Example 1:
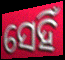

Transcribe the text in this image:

ସେହିଁ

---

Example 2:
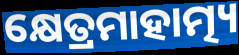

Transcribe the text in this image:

କ୍ଷେତ୍ରମାହାତ୍ମ୍ୟ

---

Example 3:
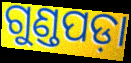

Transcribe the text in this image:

ଗୁଣ୍ଡପଡ଼ା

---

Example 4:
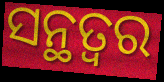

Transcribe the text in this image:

ସନ୍ଥତ୍ବର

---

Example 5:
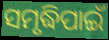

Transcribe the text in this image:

ସମୃଦ୍ଧିପାଇଁ